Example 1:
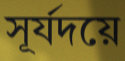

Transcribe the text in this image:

সূর্যদয়ে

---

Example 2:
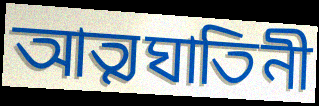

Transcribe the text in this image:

আত্মঘাতিনী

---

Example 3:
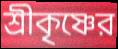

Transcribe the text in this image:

শ্রীকৃষ্ণের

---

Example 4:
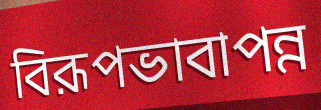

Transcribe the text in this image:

বিরূপভাবাপন্ন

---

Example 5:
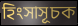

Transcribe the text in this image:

হিংসাসূচক